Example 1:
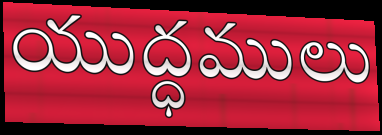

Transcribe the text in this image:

యుద్ధములు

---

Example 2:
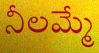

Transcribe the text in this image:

నీలమ్మే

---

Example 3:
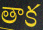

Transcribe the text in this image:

తాక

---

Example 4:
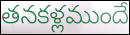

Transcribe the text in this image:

తనకళ్లముందే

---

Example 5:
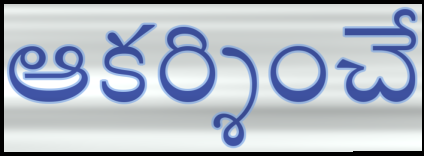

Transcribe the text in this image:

ఆకర్శించే